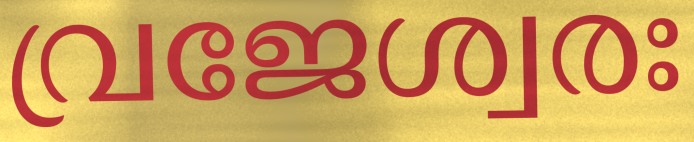
വ്രജേശ്വരഃ